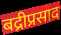
बद्रीप्रसाद